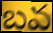
బవ